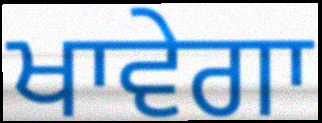
ਖਾਵੇਗਾ